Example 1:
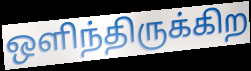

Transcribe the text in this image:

ஒளிந்திருக்கிற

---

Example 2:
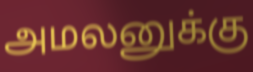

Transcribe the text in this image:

அமலனுக்கு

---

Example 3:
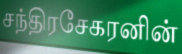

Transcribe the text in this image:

சந்திரசேகரனின்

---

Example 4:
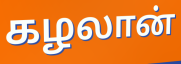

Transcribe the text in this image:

கழலான்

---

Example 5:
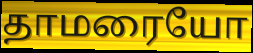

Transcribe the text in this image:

தாமரையோ